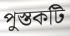
পুস্তকটি